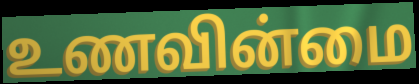
உணவின்மை